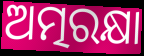
ଅତ୍ମରକ୍ଷା